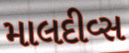
માલદીવ્સ